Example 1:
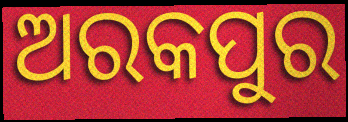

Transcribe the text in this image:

ଅରକପୁର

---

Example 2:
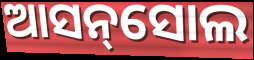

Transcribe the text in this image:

ଆସନ୍‌ସୋଲ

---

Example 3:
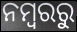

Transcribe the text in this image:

ନମ୍ୱରରୁ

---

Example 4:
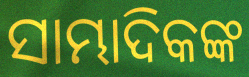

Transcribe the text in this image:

ସାମ୍ଭାଦିକଙ୍କ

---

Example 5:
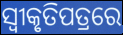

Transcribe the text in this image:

ସ୍ୱୀକୃତିପତ୍ରରେ